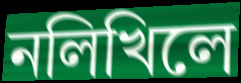
নলিখিলে